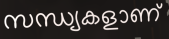
സന്ധ്യകളാണ്